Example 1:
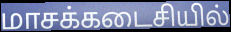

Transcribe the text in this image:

மாசக்கடைசியில்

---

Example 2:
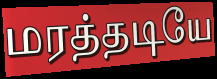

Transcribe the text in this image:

மரத்தடியே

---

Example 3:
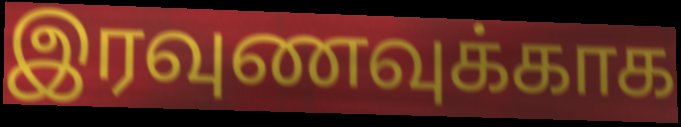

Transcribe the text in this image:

இரவுணவுக்காக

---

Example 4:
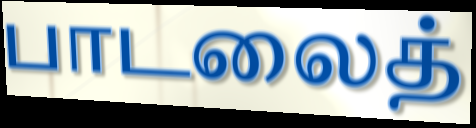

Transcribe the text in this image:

பாடலைத்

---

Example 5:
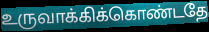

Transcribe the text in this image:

உருவாக்கிக்கொண்டதே